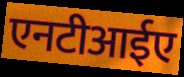
एनटीआईए